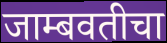
जाम्बवतीचा